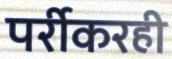
पर्रीकरही